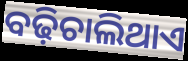
ବଢ଼ିଚାଲିଥାଏ